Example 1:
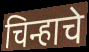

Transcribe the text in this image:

चिन्हाचे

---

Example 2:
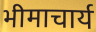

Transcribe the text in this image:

भीमाचार्य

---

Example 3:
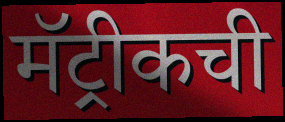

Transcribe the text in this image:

मॅट्रीकची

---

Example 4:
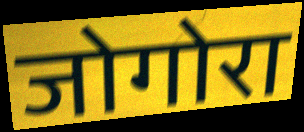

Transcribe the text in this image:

जोगोरा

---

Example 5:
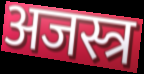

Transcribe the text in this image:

अजस्त्र